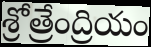
శ్రోత్రేంద్రియం